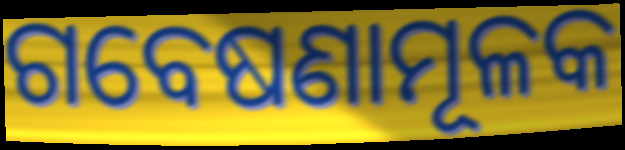
ଗବେଷଣାମୂଳକ